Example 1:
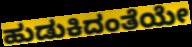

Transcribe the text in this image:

ಹುಡುಕಿದಂತೆಯೇ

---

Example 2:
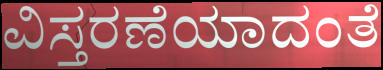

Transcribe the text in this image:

ವಿಸ್ತರಣೆಯಾದಂತೆ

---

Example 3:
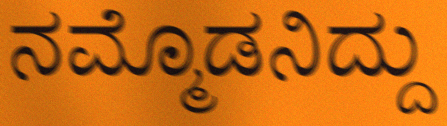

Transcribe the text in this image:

ನಮ್ಮೊಡನಿದ್ದು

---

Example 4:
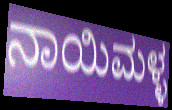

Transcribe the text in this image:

ನಾಯಿಮಳ್ಳ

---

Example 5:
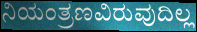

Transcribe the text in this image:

ನಿಯಂತ್ರಣವಿರುವುದಿಲ್ಲ